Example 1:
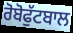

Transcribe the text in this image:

ਰੋਬੋਫੁੱਟਬਾਲ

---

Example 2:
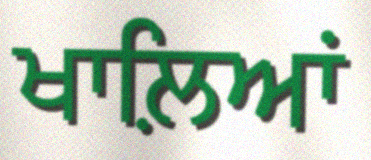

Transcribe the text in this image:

ਖਾਲ਼ਿਆਂ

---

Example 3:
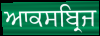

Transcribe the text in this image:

ਆਕਸਬ੍ਰਿਜ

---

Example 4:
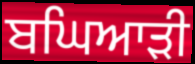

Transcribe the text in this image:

ਬਘਿਆੜੀ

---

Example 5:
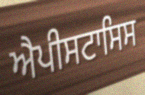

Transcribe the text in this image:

ਐਪੀਸਟਾਸਿਸ